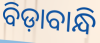
ବିଡ଼ାବାନ୍ଧି